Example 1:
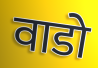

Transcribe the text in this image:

वाडो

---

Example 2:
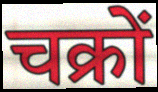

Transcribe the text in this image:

चक्रों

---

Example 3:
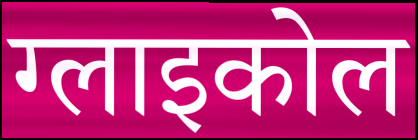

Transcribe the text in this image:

ग्लाइकोल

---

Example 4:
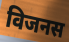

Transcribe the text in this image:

विजनस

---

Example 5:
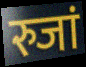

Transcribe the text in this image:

रुजां